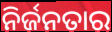
ନିର୍ଜନତାର